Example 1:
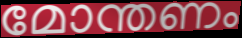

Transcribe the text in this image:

മോന്തണം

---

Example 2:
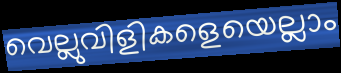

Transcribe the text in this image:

വെല്ലുവിളികളെയെല്ലാം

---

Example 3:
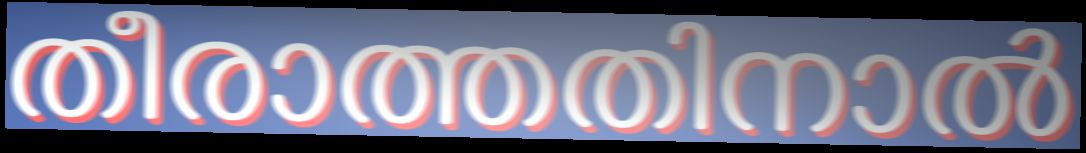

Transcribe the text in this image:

തീരാത്തതിനാൽ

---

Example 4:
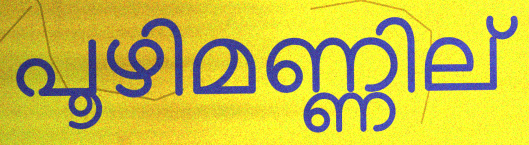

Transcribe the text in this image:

പൂഴിമണ്ണില്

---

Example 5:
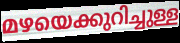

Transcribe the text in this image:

മഴയെക്കുറിച്ചുള്ള